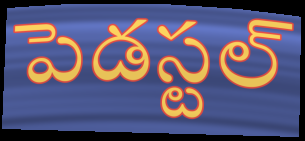
పెడస్టల్